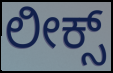
ಲೀಕ್ಸ್